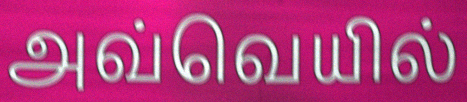
அவ்வெயில்